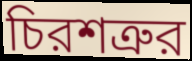
চিরশত্রুর